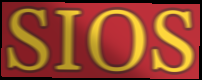
SIOS